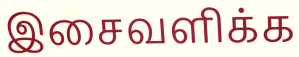
இசைவளிக்க